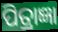
ପିତ୍ରାଜ୍ଞା